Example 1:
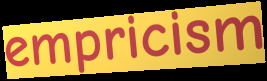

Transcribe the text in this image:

empricism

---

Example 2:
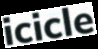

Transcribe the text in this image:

icicle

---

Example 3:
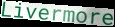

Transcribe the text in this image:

Livermore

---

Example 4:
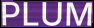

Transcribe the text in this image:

PLUM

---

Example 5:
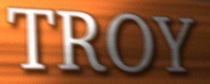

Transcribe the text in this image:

TROY